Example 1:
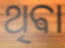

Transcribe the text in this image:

ଥିଵା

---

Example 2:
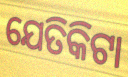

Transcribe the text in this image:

ଯେତିକିଟା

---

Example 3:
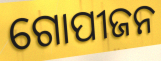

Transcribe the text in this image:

ଗୋପୀଜନ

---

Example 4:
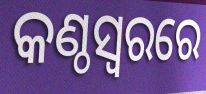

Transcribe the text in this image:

କଣ୍ଠସ୍ୱରରେ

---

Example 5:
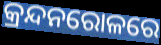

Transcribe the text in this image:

କ୍ରନ୍ଦନରୋଳରେ